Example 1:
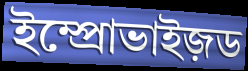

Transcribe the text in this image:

ইম্প্রোভাইজ়ড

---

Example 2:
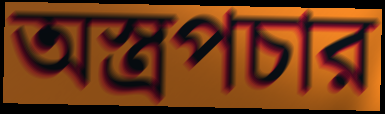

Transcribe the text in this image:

অস্ত্রপচার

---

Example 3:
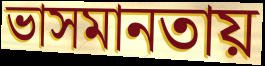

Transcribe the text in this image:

ভাসমানতায়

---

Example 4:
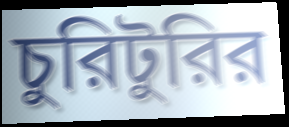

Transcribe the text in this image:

চুরিটুরির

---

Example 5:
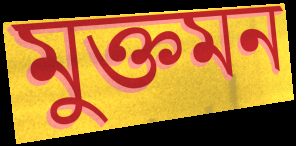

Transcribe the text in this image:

মুক্তমন